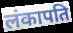
लंकापति